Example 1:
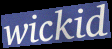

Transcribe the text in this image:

wickid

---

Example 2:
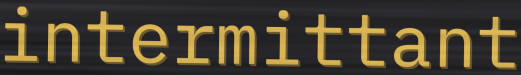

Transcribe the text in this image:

intermittant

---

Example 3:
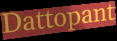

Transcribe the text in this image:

Dattopant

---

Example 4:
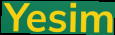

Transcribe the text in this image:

Yesim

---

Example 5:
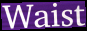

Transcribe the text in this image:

Waist